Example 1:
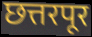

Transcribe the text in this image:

छत्तरपूर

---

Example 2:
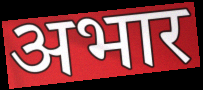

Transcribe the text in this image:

अभार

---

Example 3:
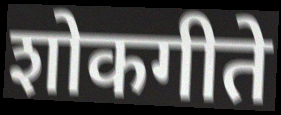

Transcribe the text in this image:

शोकगीते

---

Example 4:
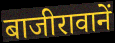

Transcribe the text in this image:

बाजीरावानें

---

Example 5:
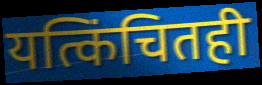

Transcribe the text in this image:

यत्किंचितही